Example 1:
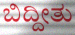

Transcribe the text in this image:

ಬಿದ್ದೀತು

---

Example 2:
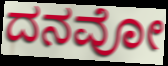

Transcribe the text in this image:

ದನವೋ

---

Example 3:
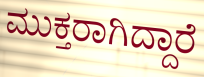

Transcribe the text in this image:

ಮುಕ್ತರಾಗಿದ್ದಾರೆ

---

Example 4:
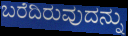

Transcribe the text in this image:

ಬರೆದಿರುವುದನ್ನು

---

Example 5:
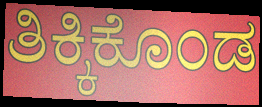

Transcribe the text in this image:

ತಿಕ್ಕಿಕೊಂಡ